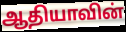
ஆதியாவின்